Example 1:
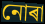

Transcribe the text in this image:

নোৰা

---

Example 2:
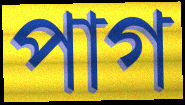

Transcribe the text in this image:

পাগ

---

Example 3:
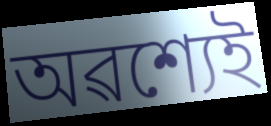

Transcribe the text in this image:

অৱশ্যেই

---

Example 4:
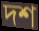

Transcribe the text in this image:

দশ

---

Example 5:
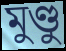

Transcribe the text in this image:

মুণ্ডু